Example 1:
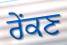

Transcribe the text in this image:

ਰੇੰਕਣ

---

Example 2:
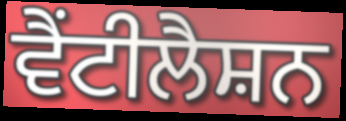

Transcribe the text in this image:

ਵੈਂਟੀਲੈਸ਼ਨ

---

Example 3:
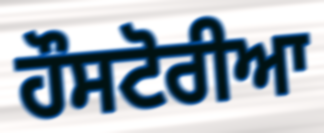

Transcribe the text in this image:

ਹੌਸਟੋਰੀਆ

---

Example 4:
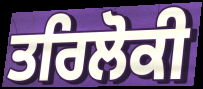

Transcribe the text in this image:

ਤਰਿਲੋਕੀ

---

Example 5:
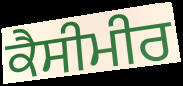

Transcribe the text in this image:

ਕੈਸੀਮੀਰ